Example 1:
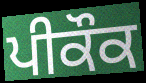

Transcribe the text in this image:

ਪੀਕੌਕ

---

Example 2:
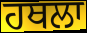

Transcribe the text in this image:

ਹਥਲਾ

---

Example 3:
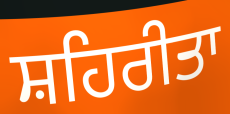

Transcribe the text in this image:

ਸ਼ਹਿਰੀਤਾ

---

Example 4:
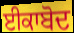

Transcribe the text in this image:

ਈਕਾਬੋਦ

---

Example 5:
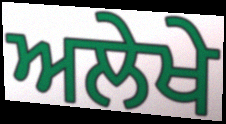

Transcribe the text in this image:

ਅਲੇਖੇ